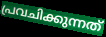
പ്രവചിക്കുന്നത്